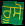
ਰੂਸੋ